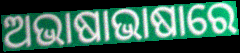
ଅଭାଷାଭାଷାରେ